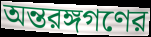
অন্তরঙ্গগণের